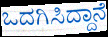
ಒದಗಿಸಿದ್ದಾನೆ